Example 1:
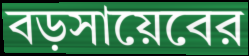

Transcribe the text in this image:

বড়সায়েবের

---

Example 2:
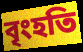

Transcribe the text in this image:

বৃংহতি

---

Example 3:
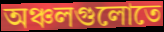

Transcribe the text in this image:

অঞ্চলগুলোতে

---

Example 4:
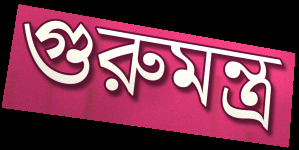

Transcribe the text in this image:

গুরুমন্ত্র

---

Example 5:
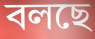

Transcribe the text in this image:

বলছে